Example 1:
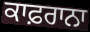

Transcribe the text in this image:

ਕਾਫ਼ਰਾਨਾ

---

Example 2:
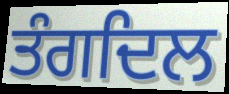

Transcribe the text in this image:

ਤੰਗਦਿਲ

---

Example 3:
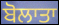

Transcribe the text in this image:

ਬੋਲਾਤਾ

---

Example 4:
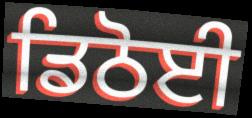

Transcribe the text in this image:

ਡਿਠੋਈ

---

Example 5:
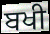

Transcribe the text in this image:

ਬਖੀ